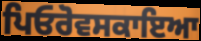
ਪਿਓਰੋਵਸਕਾਇਆ